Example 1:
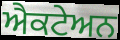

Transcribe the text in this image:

ਐਕਟੇਅਨ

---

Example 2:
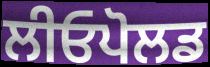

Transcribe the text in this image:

ਲੀਓਪੋਲਡ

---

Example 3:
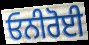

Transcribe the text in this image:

ਓਨੀਰੋਈ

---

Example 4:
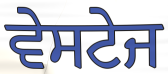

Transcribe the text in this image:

ਵੇਸਟੇਜ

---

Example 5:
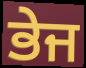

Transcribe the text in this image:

ਭੇਜ